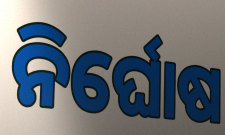
ନିର୍ଘୋଷ